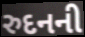
રુદનની